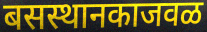
बसस्थानकाजवळ